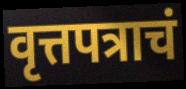
वृत्तपत्राचं